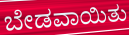
ಬೇಡವಾಯಿತು